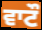
ਵਾਟੌ